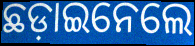
ଛଡ଼ାଇନେଲେ